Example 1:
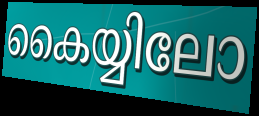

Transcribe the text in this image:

കൈയ്യിലോ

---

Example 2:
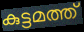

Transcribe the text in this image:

കുട്ടമത്ത്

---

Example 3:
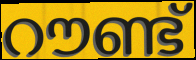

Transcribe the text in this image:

റൗണ്ട്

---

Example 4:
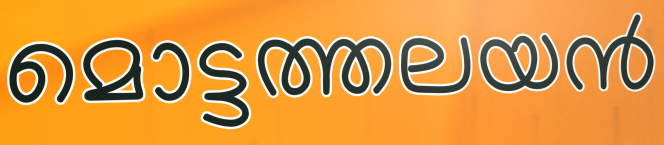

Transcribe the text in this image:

മൊട്ടത്തലയൻ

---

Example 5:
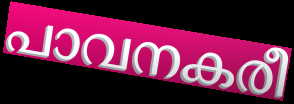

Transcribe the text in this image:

പാവനകരീ